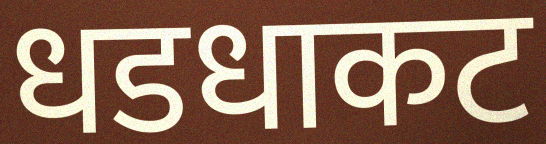
धडधाकट